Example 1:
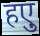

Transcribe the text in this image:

हएु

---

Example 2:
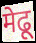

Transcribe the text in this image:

मेढू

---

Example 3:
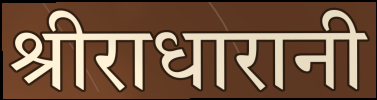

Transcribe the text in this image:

श्रीराधारानी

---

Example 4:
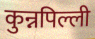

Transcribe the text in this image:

कुन्नपिल्ली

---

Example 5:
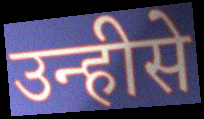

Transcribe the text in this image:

उन्हीसे